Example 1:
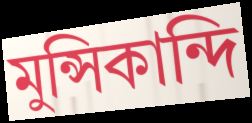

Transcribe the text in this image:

মুন্সিকান্দি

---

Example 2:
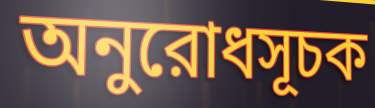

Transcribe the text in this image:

অনুরোধসূচক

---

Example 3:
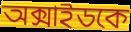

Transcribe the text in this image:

অক্সাইডকে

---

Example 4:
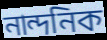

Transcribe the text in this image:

নান্দনিক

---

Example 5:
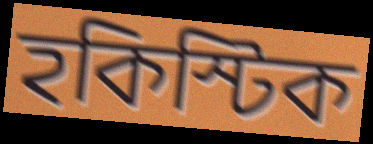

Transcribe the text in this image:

হকিস্টিক